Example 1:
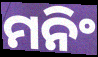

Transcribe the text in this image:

ମନିଂ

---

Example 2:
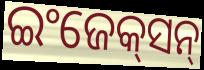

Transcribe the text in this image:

ଇଂଜେକ୍‌ସନ୍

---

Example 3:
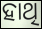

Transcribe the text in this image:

ହାଥି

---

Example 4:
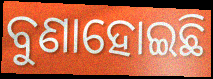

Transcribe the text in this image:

ବୁଣାହୋଇଛି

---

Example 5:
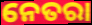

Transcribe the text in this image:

ନେତରା